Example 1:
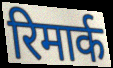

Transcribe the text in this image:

रिमार्क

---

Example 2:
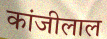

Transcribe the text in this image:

कांजीलाल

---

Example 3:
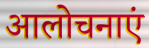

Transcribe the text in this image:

आलोचनाएं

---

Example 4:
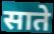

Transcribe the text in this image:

साते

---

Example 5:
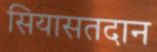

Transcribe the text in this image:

सियासतदान